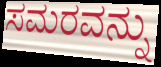
ಸಮರವನ್ನು